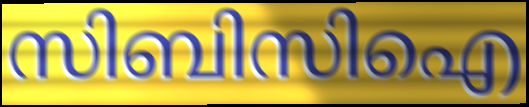
സിബിസിഐ